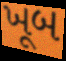
ખૂબ